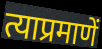
त्याप्रमाणें